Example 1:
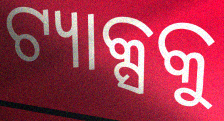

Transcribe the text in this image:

ଟ୍ୟାକ୍ସକୁ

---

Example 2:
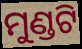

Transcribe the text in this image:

ମୁଣ୍ଡଟି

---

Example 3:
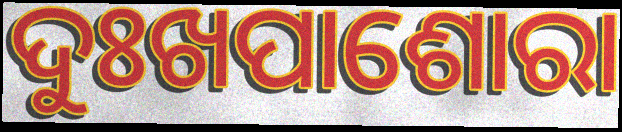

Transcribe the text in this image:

ଦୁଃଖପାଶୋରା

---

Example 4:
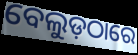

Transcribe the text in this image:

ବେଲୁଡ଼ଠାରେ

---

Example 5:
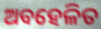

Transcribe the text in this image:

ଅବହେଳିତ